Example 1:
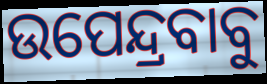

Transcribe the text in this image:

ଉପେନ୍ଦ୍ରବାବୁ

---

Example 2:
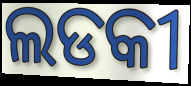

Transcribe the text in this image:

ଲଡକୀ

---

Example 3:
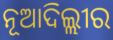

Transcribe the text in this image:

ନୂଆଦିଲ୍ଲୀର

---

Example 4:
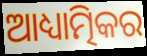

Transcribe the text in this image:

ଆଧ୍ୟାତ୍ମିକର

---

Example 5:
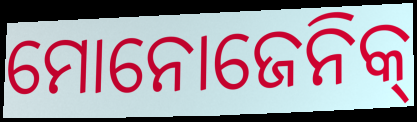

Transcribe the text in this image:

ମୋନୋଜେନିକ୍